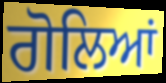
ਗੋਲਿਆਂ